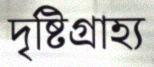
দৃষ্টিগ্রাহ্য